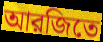
আরজিতে